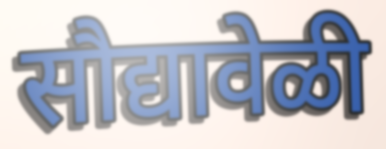
सौद्यावेळी